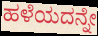
ಹಳೆಯದನ್ನೇ